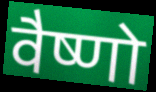
वैष्‍णो